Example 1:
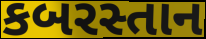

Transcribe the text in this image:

કબરસ્તાન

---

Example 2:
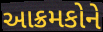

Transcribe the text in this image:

આક્રમકોને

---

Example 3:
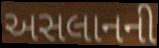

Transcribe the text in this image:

અસલાનની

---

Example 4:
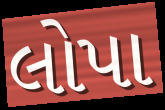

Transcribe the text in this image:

લોપા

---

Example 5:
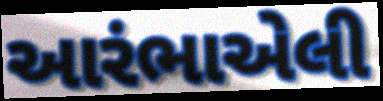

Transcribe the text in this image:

આરંભાએલી